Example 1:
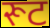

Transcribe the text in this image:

रूट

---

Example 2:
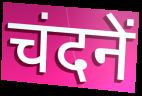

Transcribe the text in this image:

चंदनें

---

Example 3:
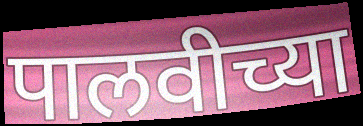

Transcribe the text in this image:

पालवीच्या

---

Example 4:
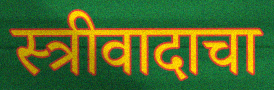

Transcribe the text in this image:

स्त्रीवादाचा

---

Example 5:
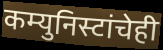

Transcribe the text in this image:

कम्युनिस्टांचेही